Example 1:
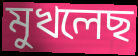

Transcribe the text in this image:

মুখলেছ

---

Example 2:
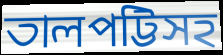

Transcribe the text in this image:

তালপট্টিসহ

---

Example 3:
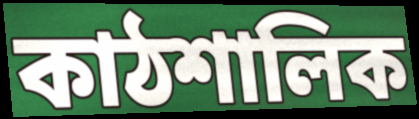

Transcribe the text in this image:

কাঠশালিক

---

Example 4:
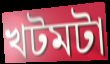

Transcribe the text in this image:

খটমটা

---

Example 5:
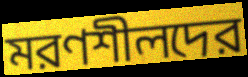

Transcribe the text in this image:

মরণশীলদের